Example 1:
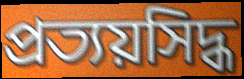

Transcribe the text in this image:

প্রত্যয়সিদ্ধ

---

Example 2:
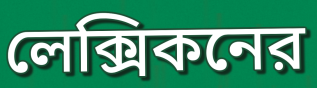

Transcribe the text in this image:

লেক্সিকনের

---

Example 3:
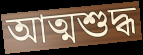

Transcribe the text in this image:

আত্মশুদ্ধ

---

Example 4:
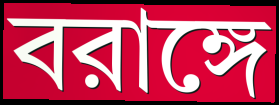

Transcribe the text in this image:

বরাঙ্গে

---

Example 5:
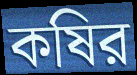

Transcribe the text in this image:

কষির